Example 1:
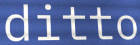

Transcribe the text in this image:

ditto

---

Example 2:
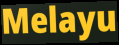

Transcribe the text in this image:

Melayu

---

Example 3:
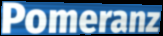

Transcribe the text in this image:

Pomeranz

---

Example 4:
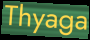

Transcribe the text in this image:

Thyaga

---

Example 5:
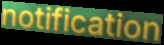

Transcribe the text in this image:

notification